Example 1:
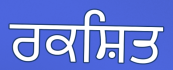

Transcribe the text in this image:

ਰਕਸ਼ਿਤ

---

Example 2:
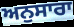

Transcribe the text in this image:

ਅਨੁਸਾਰਾ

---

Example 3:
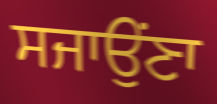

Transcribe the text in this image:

ਸਜਾਉਂਣਾ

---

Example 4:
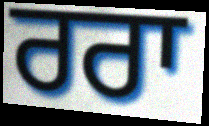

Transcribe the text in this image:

ਰਰਾ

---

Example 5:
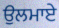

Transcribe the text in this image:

ਉਲਮਾਏ